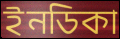
ইনডিকা